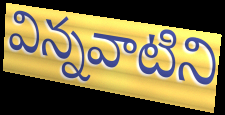
విన్నవాటిని